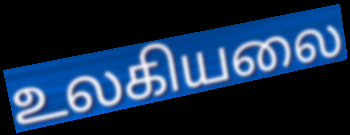
உலகியலை